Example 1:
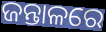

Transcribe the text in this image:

ଜନ୍ତାଳରେ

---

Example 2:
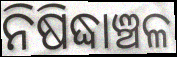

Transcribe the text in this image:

ନିଷିଦ୍ଧାଞ୍ଚଳ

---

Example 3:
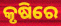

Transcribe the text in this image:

କୃଷିରେ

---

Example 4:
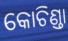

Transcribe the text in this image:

କୋଚିଣ୍ଡା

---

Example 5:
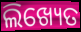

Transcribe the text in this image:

ଲିଖ୍ଯେତ